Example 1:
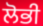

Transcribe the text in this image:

ਲੋਭੀ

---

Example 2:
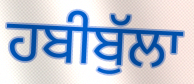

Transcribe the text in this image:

ਹਬੀਬੁੱਲਾ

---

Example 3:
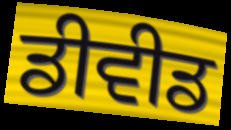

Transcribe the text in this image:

ਡੀਵੀਡ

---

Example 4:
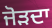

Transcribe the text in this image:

ਜੋੜਦਾ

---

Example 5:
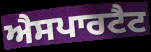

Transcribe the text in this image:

ਐਸਪਾਰਟੈਟ